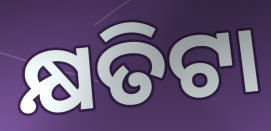
କ୍ଷତିଟା